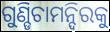
ଗୁଣ୍ଡିଚାମନ୍ଦିରକୁ